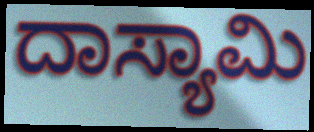
ದಾಸ್ಯಾಮಿ